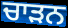
ਚਾੜਨ